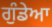
ਗੁੰਡੇਆ